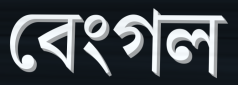
বেংগল